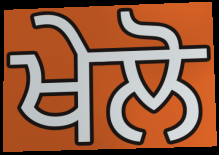
ਖੇਲੋ